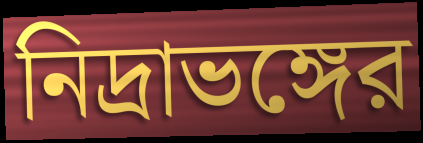
নিদ্রাভঙ্গের